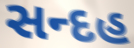
સન્દહ